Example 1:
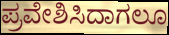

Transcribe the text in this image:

ಪ್ರವೇಶಿಸಿದಾಗಲೂ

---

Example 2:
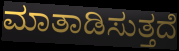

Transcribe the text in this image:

ಮಾತಾಡಿಸುತ್ತದೆ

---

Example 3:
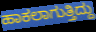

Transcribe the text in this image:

ಹಾಕಲಾಗುತ್ತಿದ್ದು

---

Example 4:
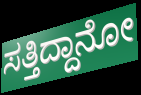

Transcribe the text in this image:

ಸತ್ತಿದ್ದಾನೋ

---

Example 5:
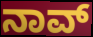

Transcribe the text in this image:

ನಾವ್